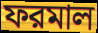
ফরমাল